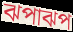
ঝপাঝপ